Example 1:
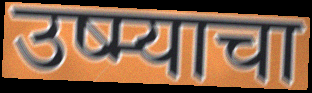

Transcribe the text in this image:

उष्म्याचा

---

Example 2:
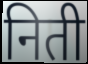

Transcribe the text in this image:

निती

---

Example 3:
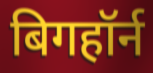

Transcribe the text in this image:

बिगहॉर्न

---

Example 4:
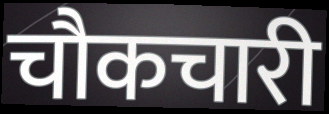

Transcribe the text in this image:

चौकचारी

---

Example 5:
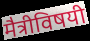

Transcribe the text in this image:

मैत्रीविषयी